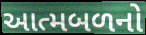
આત્મબળનો